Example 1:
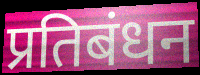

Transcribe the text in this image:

प्रतिबंधन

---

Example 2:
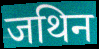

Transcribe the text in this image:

जथिन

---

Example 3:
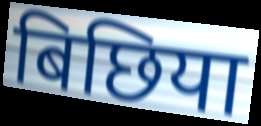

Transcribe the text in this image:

बिछिया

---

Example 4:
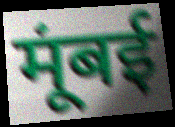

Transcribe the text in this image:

मूंबई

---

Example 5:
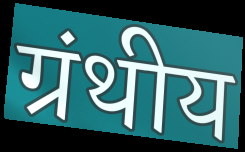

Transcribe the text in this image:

ग्रंथीय